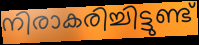
നിരാകരിച്ചിട്ടുണ്ട്